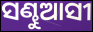
ସଣ୍ଢୁଆସୀ